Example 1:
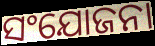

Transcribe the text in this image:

ସଂଯୋଜନା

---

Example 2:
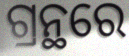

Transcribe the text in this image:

ଗ୍ରନ୍ଥରେ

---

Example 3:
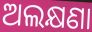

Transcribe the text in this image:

ଅଲକ୍ଷଣା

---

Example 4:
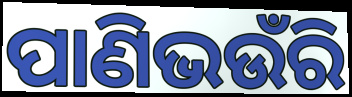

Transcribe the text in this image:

ପାଣିଭଉଁରି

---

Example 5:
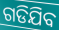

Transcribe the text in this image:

ଗଡିଯିବ